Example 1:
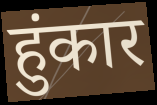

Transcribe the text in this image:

हुंकार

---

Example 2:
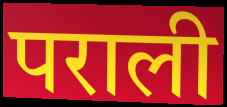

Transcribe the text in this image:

पराली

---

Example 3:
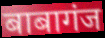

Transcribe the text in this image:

बाबागंज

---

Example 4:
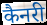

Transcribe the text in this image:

कैनरी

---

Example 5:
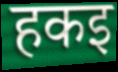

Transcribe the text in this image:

हकइ